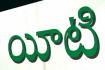
యీటి